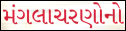
મંગલાચરણોનો